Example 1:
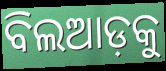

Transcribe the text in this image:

ବିଲଆଡ଼କୁ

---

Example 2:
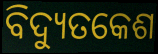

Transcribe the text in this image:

ବିଦ୍ୟୁତକେଶ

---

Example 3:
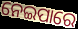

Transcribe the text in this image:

ନେଇପାରେ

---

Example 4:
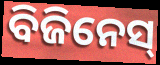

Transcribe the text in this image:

ବିଜିନେସ୍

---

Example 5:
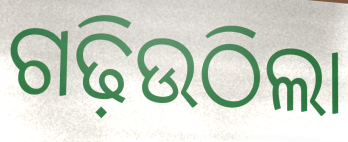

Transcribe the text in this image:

ଗଢ଼ିଉଠିଲା